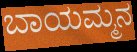
ಬಾಯಮ್ಮನ